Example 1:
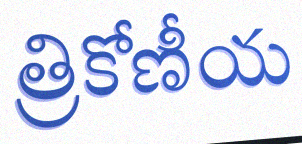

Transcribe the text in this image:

త్రికోణీయ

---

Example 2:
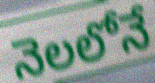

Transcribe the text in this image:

నెలలోనే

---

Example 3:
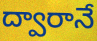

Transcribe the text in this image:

ద్వారానే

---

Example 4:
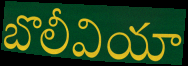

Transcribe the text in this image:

బొలీవియా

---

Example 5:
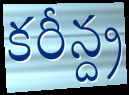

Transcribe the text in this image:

కరీన్ద్ర